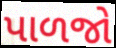
પાળજો